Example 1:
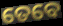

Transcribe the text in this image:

ତେବେ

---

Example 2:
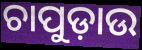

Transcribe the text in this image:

ଚାପୁଡ଼ାଉ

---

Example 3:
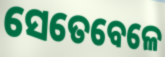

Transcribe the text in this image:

ସେତେବେଳେ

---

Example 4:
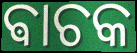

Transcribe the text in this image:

ଵାଚକ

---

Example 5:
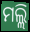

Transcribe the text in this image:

ମଲ୍ଲି